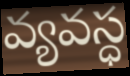
వ్యవస్ధ